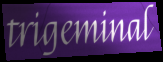
trigeminal